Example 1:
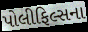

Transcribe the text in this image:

પોલીફિલ્સના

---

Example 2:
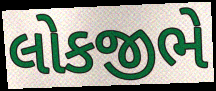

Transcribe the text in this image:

લોકજીભે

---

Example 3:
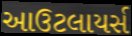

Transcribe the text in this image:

આઉટલાયર્સ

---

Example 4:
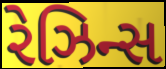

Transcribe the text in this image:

રેઝિન્સ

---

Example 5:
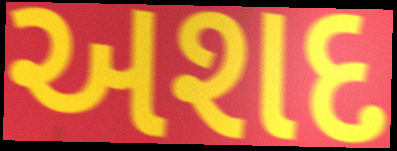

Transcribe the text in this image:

અશદ